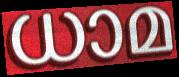
ധാമ